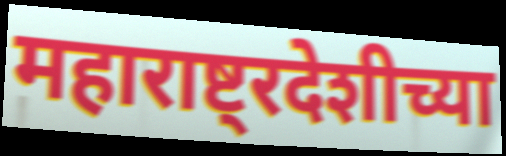
महाराष्ट्रदेशीच्या